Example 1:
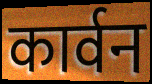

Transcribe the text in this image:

कार्वन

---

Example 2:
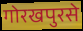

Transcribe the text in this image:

गोरखपुरसे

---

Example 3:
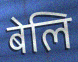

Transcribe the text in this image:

बेलि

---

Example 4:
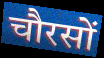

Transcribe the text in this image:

चौरसों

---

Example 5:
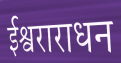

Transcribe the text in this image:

ईश्वराराधन